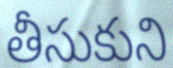
తీసుకుని